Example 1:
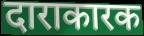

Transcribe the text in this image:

दाराकारक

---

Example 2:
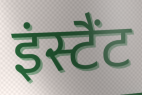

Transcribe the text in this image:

इंस्टैंट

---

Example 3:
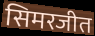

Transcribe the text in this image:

सिमरजीत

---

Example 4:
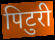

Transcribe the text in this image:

पिटुरी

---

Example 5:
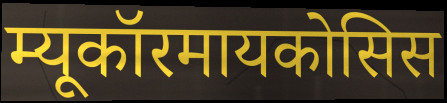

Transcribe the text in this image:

म्यूकॉरमायकोसिस